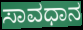
ಸಾವಧಾನ